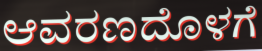
ಆವರಣದೊಳಗೆ